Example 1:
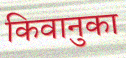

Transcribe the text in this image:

किवानुका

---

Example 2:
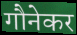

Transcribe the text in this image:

गौनेकर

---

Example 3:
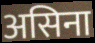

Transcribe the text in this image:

असिना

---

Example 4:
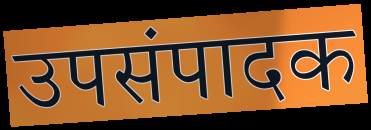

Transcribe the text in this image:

उपसंपादक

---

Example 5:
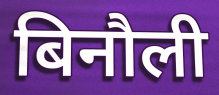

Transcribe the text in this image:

बिनौली